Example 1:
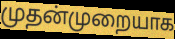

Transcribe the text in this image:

முதன்முறையாக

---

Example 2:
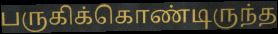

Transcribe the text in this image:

பருகிக்கொண்டிருந்த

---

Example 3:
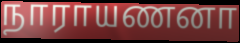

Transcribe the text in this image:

நாராயணனா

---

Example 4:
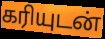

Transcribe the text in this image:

கரியுடன்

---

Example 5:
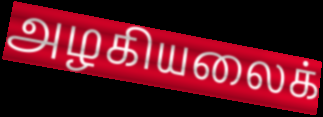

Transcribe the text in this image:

அழகியலைக்